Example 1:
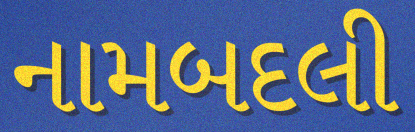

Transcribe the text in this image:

નામબદલી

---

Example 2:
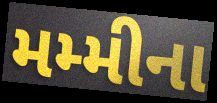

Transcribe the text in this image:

મમ્મીના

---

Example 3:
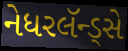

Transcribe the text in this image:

નેધરલૅન્ડ્સે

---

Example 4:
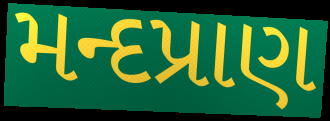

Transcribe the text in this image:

મન્દપ્રાણ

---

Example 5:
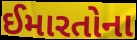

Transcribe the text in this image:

ઈમારતોના